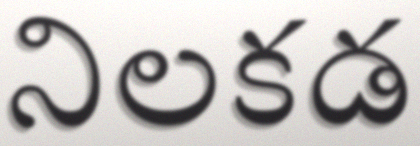
నిలకడ